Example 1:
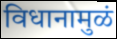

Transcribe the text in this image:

विधानामुळं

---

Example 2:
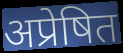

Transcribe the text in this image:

अप्रेषित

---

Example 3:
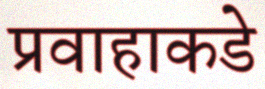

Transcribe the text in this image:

प्रवाहाकडे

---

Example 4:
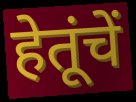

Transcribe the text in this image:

हेतूंचें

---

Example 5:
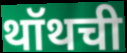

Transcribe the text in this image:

थॉथची